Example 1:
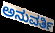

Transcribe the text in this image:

ಅನುವರ್ತಿ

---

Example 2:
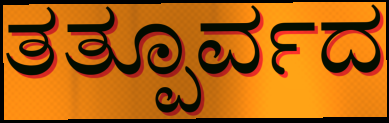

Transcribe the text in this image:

ತತ್ಪೂರ್ವದ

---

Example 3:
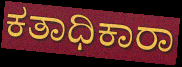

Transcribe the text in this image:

ಕತಾಧಿಕಾರಾ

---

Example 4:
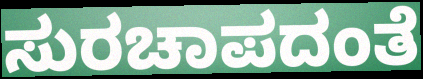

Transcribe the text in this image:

ಸುರಚಾಪದಂತೆ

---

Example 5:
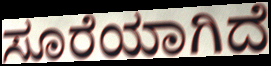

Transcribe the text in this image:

ಸೂರೆಯಾಗಿದೆ